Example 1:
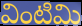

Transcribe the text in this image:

వింటిమి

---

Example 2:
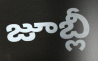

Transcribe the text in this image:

జూబ్లీ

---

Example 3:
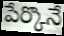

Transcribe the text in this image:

పేర్కొనే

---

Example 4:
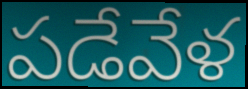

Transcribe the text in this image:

పడేవేళ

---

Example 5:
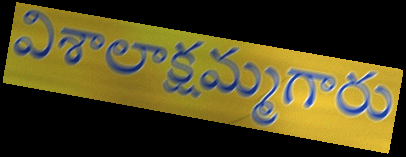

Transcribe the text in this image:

విశాలాక్షమ్మగారు